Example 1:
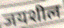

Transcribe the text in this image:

जयशील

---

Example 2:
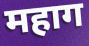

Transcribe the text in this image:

महाग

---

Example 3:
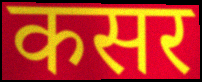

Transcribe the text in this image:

कसर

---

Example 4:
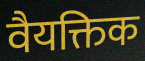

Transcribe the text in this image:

वैयक्तिक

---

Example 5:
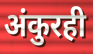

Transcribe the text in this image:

अंकुरही